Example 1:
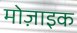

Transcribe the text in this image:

मोज़ाइक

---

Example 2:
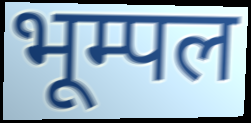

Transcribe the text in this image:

भूम्पल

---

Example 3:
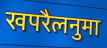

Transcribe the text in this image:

खपरैलनुमा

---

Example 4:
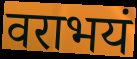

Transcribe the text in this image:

वराभयं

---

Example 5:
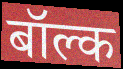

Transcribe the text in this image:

बॉल्क